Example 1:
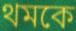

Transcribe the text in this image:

থমকে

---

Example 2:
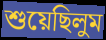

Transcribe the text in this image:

শুয়েছিলুম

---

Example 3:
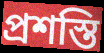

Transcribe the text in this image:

প্রশস্তি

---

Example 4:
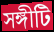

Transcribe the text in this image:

সঙ্গীটি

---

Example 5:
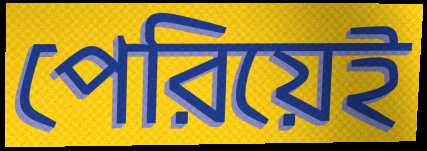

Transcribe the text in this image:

পেরিয়েই